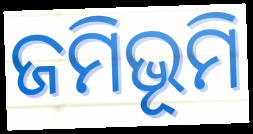
ଜମିଭୂମି